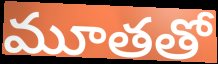
మూతతో